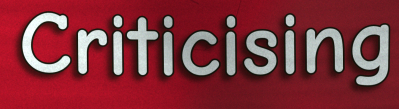
Criticising